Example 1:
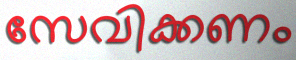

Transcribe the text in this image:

സേവിക്കണം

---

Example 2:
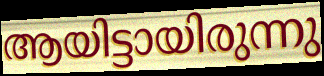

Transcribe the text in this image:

ആയിട്ടായിരുന്നു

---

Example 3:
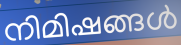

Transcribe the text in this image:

നിമിഷങ്ങൾ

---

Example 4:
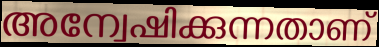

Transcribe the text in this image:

അന്വേഷിക്കുന്നതാണ്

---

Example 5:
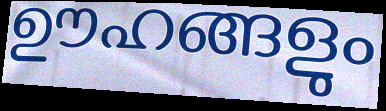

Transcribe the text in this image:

ഊഹങ്ങളും